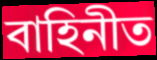
বাহিনীত